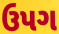
ઉપગ